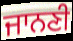
ਜਾਨਣੀ